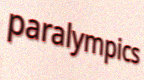
paralympics